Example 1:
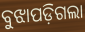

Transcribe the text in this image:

ବୁଝାପଡ଼ିଗଲା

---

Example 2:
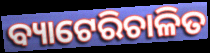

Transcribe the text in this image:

ବ୍ୟାଟେରିଚାଳିତ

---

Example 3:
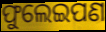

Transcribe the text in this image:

ଫୁଲେଇପଣ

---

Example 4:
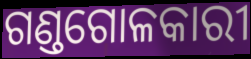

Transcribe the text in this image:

ଗଣ୍ଡଗୋଳକାରୀ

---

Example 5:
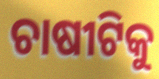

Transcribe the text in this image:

ଚାଷୀଟିକୁ